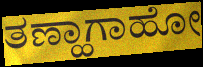
ತಣ್ಹಾಗಾಹೋ